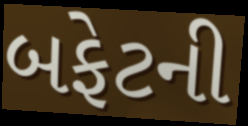
બફેટની